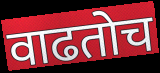
वाढतोच